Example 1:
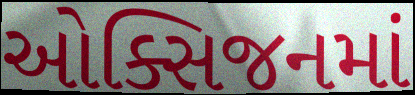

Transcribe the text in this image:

ઓક્સિજનમાં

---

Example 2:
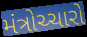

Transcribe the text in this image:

મંત્રોચ્ચારો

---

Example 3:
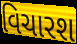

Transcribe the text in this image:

વિચારશ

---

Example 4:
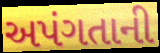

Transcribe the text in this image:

અપંગતાની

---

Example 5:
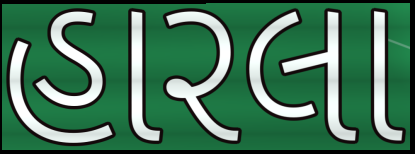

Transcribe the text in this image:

હારલા